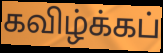
கவிழ்க்கப்